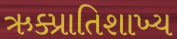
ઋક્પ્રાતિશાખ્ય